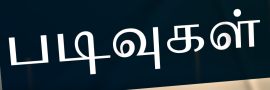
படிவுகள்